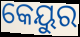
କେୟୁର